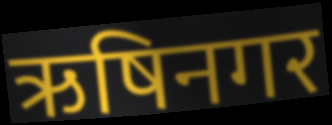
ऋषिनगर